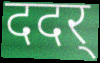
ददर्